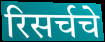
रिसर्चचे